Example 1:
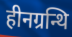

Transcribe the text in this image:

हीनग्रन्थि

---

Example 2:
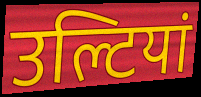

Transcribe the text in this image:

उल्‍टियां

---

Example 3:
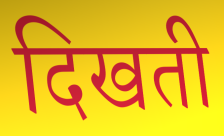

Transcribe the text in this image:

दिखती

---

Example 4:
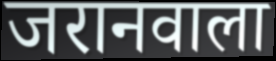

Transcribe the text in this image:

जरानवाला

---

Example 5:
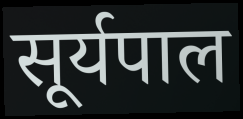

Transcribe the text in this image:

सूर्यपाल